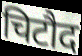
चिटौद